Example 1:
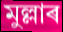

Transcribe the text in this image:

মুল্লাৰ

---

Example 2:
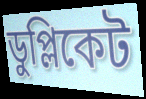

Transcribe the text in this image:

ডুপ্লিকেট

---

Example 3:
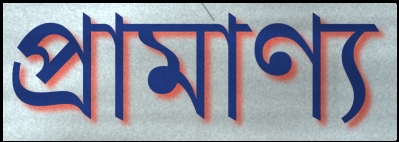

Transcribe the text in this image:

প্ৰামাণ্য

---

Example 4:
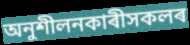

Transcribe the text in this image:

অনুশীলনকাৰীসকলৰ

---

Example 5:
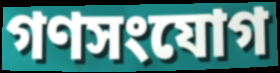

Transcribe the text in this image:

গণসংযোগ